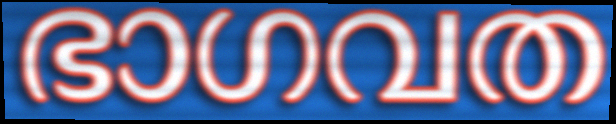
ഭാഗവത